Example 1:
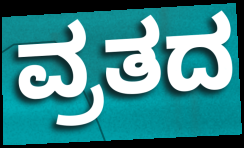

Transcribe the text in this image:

ವ್ರತದ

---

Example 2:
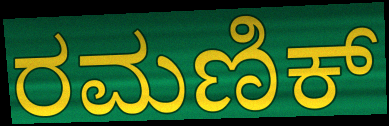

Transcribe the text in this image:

ರಮಣಿಕ್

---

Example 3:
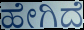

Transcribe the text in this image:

ಹೇಗಿದೆ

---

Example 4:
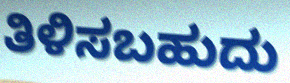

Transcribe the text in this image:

ತಿಳಿಸಬಹುದು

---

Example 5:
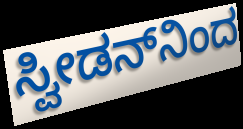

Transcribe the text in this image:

ಸ್ವೀಡನ್‌ನಿಂದ